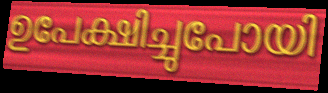
ഉപേക്ഷിച്ചുപോയി